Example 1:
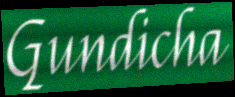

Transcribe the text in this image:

Gundicha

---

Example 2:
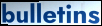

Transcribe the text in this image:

bulletins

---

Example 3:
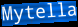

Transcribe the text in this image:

Mytella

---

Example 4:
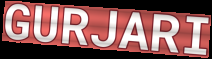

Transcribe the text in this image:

GURJARI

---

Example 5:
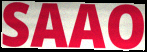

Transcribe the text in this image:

SAAO